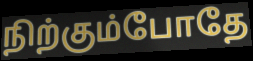
நிற்கும்போதே